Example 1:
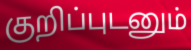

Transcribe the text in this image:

குறிப்புடனும்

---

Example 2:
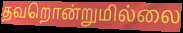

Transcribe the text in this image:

தவறொன்றுமில்லை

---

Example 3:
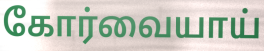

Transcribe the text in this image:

கோர்வையாய்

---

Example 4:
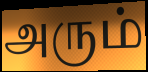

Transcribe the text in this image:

அரும்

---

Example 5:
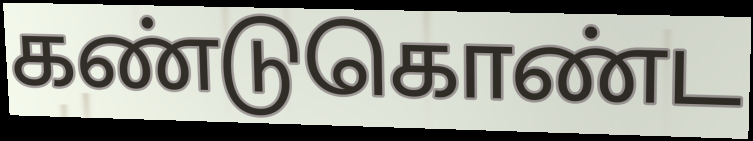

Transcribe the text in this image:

கண்டுகொண்ட